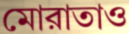
মোরাতাও